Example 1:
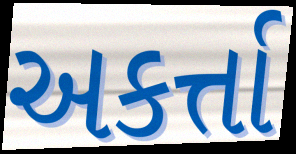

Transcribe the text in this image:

અકર્ત્તા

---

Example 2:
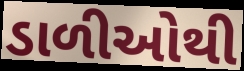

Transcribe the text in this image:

ડાળીઓથી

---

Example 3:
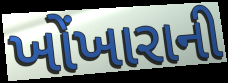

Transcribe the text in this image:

ખોંખારાની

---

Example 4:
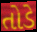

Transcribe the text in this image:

તોડે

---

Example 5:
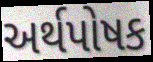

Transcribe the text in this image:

અર્થપોષક